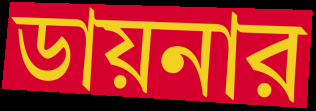
ডায়নার